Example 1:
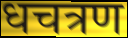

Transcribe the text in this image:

धचत्रण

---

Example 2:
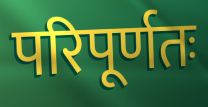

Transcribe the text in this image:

परिपूर्णतः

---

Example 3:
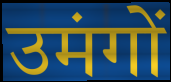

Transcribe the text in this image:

उमंगों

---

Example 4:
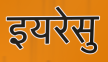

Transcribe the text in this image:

इयरेसु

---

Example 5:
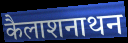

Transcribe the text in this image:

कैलाशनाथन